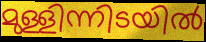
മുള്ളിന്നിടയിൽ